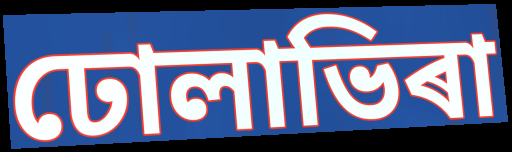
ঢোলাভিৰা